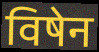
विषेन